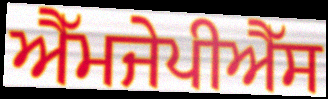
ਐੱਮਜੇਪੀਐੱਸ